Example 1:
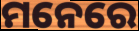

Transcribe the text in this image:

ମନେରେ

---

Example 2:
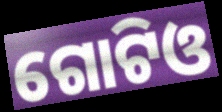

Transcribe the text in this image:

ଗୋଟିଓ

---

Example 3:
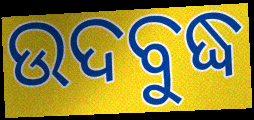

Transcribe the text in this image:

ଉଦବୁଦ୍ଧ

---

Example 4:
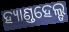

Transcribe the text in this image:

ହ୍ୟାଣ୍ଡହେଲ୍ଡ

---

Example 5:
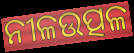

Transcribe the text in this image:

ନୀଳଉତ୍ପଳ